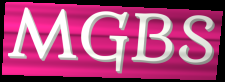
MGBS